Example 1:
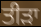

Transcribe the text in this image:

ਤੀੜਾ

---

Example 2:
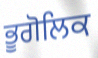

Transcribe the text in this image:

ਭੂਗੋਲਿਕ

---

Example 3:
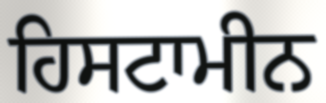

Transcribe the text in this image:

ਹਿਸਟਾਮੀਨ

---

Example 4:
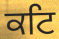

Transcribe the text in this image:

ਕਟਿ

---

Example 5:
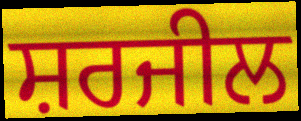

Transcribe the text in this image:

ਸ਼ਰਜੀਲ